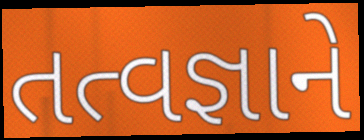
તત્વજ્ઞાને